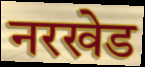
नरखेड